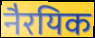
नैरयिक